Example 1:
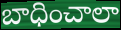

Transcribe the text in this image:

బాధించాలా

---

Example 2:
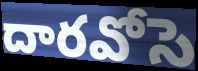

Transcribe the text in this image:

దారవోసె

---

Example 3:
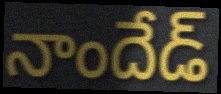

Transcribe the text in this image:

నాందేడ్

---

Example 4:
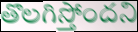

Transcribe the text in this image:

తొలగిస్తోందని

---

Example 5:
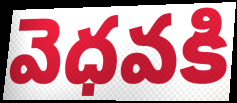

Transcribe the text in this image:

వెధవకి